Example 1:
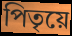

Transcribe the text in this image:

পিতৃয়ে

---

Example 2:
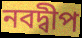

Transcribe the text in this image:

নবদ্বীপ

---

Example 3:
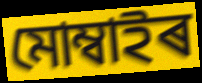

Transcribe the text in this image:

মোম্বাইৰ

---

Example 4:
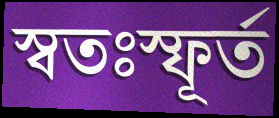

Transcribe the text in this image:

স্বতঃস্ফূৰ্ত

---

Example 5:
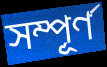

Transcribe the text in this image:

সম্পূৰ্ণ